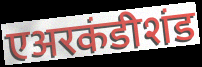
एअरकंडीशंड